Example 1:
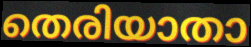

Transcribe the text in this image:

തെരിയാതാ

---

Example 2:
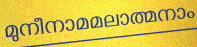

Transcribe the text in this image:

മുനീനാമമലാത്മനാം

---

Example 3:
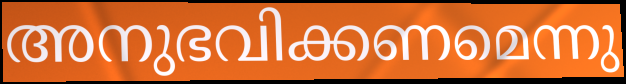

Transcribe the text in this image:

അനുഭവിക്കണമെന്നു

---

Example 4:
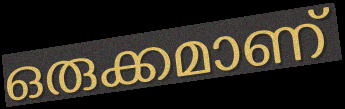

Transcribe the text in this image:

ഒരുക്കമാണ്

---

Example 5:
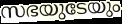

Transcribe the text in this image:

സഭയുടേയും